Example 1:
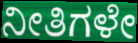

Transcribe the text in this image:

ನೀತಿಗಳೇ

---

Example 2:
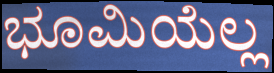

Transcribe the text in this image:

ಭೂಮಿಯೆಲ್ಲ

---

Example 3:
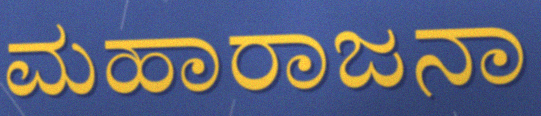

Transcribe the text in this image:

ಮಹಾರಾಜನಾ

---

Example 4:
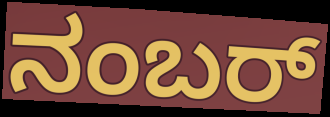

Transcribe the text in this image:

ನಂಬರ್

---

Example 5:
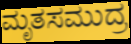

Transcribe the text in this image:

ಮೃತಸಮುದ್ರ